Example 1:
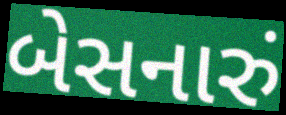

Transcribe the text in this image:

બેસનારું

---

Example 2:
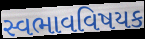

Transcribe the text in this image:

સ્વભાવવિષયક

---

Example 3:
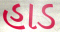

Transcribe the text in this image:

હાડ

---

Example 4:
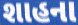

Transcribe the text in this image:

શાહના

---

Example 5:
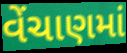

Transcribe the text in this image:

વેંચાણમાં